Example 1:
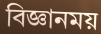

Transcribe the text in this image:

বিজ্ঞানময়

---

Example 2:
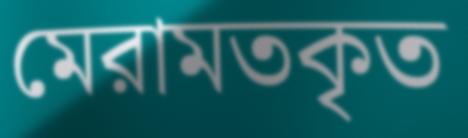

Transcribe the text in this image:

মেরামতকৃত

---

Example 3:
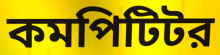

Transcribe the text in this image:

কমপিটিটর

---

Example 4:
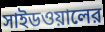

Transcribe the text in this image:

সাইডওয়ালের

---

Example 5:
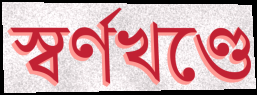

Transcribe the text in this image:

স্বর্ণখণ্ডে